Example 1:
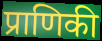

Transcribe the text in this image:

प्राणिकी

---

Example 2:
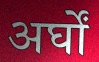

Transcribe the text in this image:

अर्घों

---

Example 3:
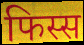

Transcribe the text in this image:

फिस्स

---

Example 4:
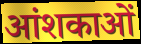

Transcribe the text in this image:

आंशकाओं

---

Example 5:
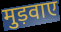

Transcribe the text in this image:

मुड़वाए